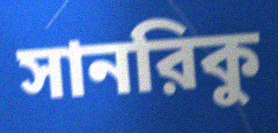
সানরিকু